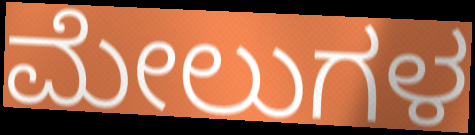
ಮೇಲುಗಳ